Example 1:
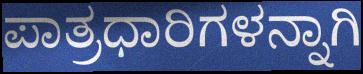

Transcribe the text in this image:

ಪಾತ್ರಧಾರಿಗಳನ್ನಾಗಿ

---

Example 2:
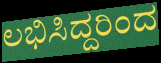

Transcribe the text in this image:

ಲಭಿಸಿದ್ದರಿಂದ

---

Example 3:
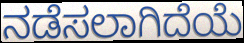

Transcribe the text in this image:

ನಡೆಸಲಾಗಿದೆಯೆ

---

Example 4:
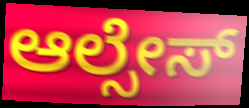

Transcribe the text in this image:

ಆಲ್ಸೇಸ್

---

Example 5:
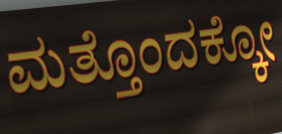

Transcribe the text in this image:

ಮತ್ತೊಂದಕ್ಕೋ